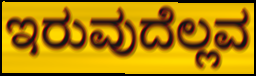
ಇರುವುದೆಲ್ಲವ